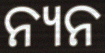
ନ୍ୟନ